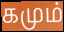
கமும்